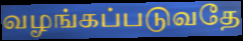
வழங்கப்படுவதே